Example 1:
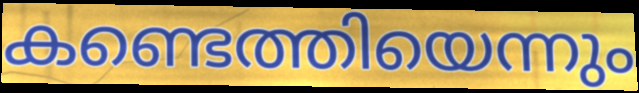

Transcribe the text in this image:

കണ്ടെത്തിയെന്നും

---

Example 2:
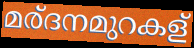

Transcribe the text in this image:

മര്ദനമുറകള്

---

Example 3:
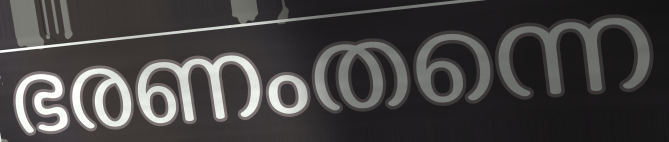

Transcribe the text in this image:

ഭരണംതന്നെ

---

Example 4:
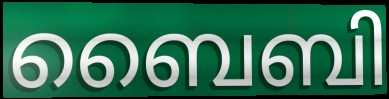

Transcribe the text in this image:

ബൈബി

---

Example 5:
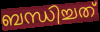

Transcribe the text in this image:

ബന്ധിച്ചത്